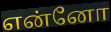
என்னோ